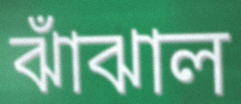
ঝাঁঝাল